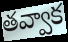
తవ్వాక